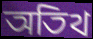
অতিথ